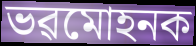
ভৱমোহনক